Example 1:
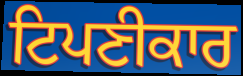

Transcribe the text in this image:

ਟਿਪਣੀਕਾਰ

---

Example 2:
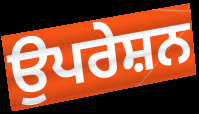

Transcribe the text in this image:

ਉਪਰੇਸ਼ਨ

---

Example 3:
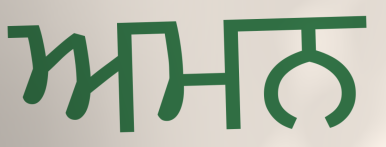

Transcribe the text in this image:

ਅਮਨ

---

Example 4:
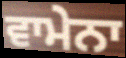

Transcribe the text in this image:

ਵਾਮੇਨਾ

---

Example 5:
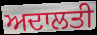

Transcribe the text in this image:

ਅਦਾਲਤੀ